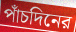
পাঁচদিনের